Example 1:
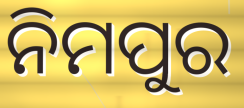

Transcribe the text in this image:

ନିମପୁର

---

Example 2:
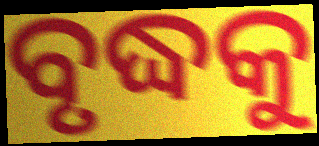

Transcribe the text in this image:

ବୃଦ୍ଧକୁ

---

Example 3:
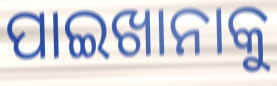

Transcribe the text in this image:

ପାଇଖାନାକୁ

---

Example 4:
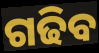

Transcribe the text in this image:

ଗଢିବ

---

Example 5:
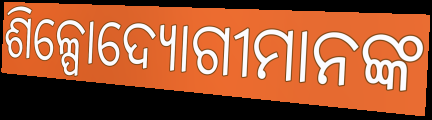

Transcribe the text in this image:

ଶିଳ୍ପୋଦ୍ୟୋଗୀମାନଙ୍କ